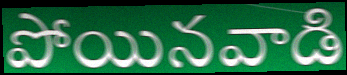
పోయినవాడి